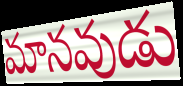
మానవుడు